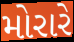
મોરારે